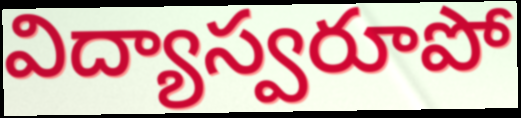
విద్యాస్వరూపో